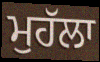
ਮੁਹੱਲਾ